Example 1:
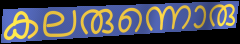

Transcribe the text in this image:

കലരുന്നൊരു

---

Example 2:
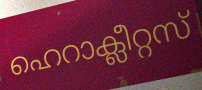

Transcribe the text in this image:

ഹെറാക്ലീറ്റസ്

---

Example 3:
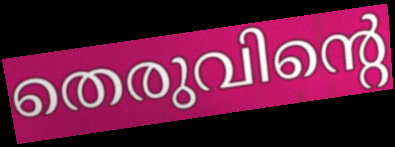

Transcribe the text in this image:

തെരുവിന്റെ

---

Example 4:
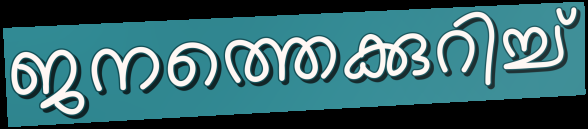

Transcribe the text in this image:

ജനത്തെക്കുറിച്ച്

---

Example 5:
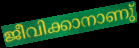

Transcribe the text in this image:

ജീവിക്കാനാണു്